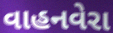
વાહનવેરા